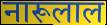
नारूलाल